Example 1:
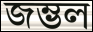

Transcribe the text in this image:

জম্ভল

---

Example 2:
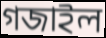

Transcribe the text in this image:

গজাইল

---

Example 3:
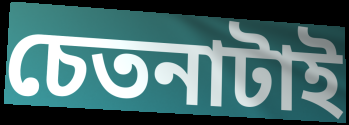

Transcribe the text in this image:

চেতনাটাই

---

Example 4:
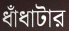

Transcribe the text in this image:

ধাঁধাটার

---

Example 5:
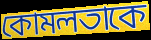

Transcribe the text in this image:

কোমলতাকে